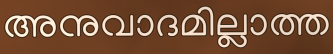
അനുവാദമില്ലാത്ത